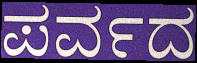
ಪರ್ವದ